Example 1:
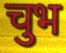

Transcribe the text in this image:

चुभ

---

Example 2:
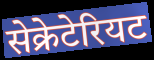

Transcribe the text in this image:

सेक्रेटेरियट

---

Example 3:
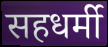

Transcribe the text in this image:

सहधर्मी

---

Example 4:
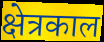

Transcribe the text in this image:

क्षेत्रकाल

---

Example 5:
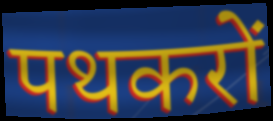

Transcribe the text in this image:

पथकरों